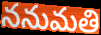
ననుమతి